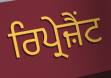
ਰਿਪ੍ਰੇਜ਼ੈਂਟ